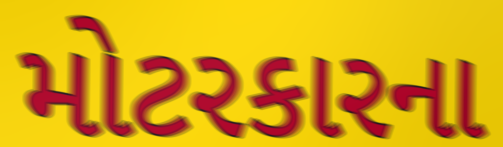
મોટરકારના